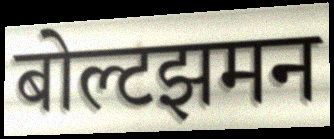
बोल्टझमन